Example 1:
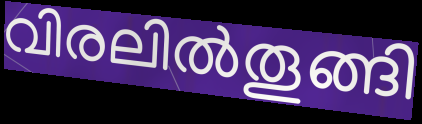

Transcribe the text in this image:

വിരലിൽതൂങ്ങി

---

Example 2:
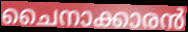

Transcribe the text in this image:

ചൈനാക്കാരൻ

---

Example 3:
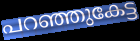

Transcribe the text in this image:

പറഞ്ഞുകേട്ട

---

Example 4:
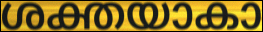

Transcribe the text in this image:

ശക്തയാകാ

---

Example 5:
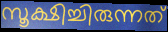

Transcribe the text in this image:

സൂക്ഷിച്ചിരുന്നത്